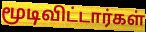
மூடிவிட்டார்கள்